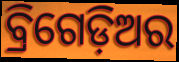
ବ୍ରିଗେଡ଼ିଅର